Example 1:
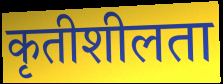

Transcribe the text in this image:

कृतीशीलता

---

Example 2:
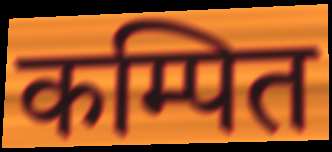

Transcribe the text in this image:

कम्पित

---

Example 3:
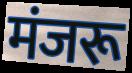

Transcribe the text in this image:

मंजरू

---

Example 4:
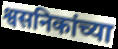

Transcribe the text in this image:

श्वसनिकांच्या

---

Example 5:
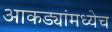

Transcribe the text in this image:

आकड्यांमध्येच